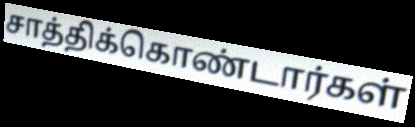
சாத்திக்கொண்டார்கள்